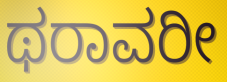
ಥರಾವರೀ